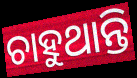
ଚାହୁଥାନ୍ତି